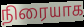
நிரையாக